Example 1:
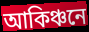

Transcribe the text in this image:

আকিঞ্চনে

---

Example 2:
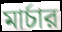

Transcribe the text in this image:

মার্চার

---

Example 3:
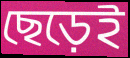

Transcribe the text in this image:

ছেড়েই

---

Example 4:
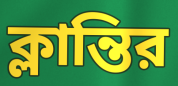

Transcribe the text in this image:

ক্লান্তির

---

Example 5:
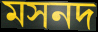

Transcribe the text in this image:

মসনদ